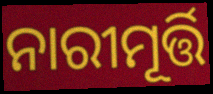
ନାରୀମୂର୍ତ୍ତି